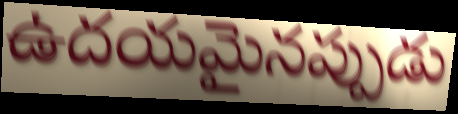
ఉదయమైనప్పుడు